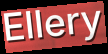
Ellery